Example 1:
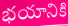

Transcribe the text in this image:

భయానికి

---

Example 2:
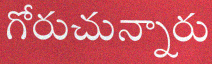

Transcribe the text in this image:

గోరుచున్నారు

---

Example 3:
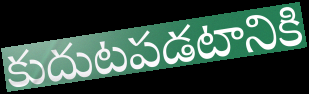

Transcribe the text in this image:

కుదుటపడటానికి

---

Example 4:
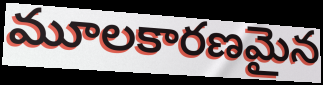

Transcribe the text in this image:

మూలకారణమైన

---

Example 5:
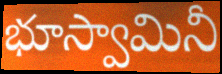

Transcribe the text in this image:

భూస్వామినీ